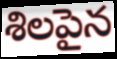
శిలపైన